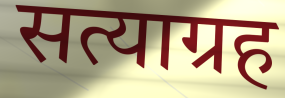
सत्याग्रह